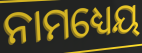
ନାମଧ୍ୟେୟ